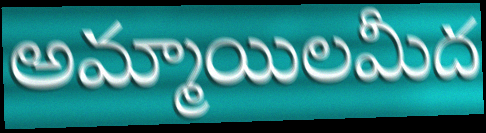
అమ్మాయిలమీద